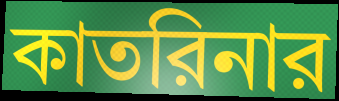
কাতরিনার